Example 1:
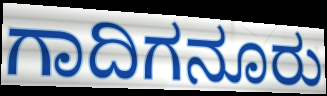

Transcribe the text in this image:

ಗಾದಿಗನೂರು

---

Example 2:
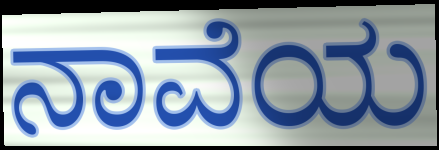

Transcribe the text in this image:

ನಾವೆಯ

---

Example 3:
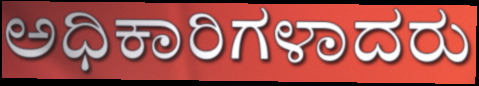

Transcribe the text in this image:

ಅಧಿಕಾರಿಗಳಾದರು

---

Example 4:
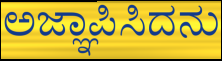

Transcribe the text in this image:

ಅಜ್ಞಾಪಿಸಿದನು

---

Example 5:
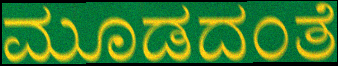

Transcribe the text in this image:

ಮೂಡದಂತೆ